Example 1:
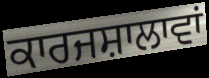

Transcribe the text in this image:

ਕਾਰਜਸ਼ਾਲਾਵਾਂ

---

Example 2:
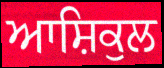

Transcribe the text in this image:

ਆਸ਼ਿਕੁਲ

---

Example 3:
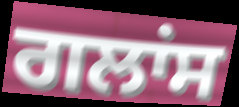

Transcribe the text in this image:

ਗਲਾਂਸ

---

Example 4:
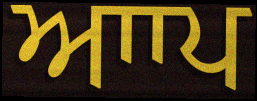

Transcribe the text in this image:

ਆਾਪ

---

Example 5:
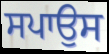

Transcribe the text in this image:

ਸਪਾਉਸ